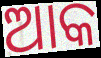
ଆକ